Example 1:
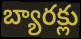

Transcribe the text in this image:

బ్యారక్లు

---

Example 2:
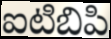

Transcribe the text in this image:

ఐటిబిపి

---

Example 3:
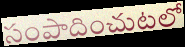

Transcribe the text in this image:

సంపాదించుటలో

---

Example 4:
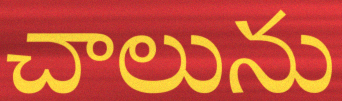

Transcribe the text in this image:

చాలును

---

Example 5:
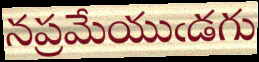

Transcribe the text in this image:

నప్రమేయుఁడగు